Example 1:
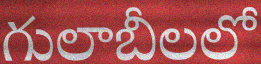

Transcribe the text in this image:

గులాబీలలో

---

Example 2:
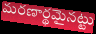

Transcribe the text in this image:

మరణార్థమైనట్టు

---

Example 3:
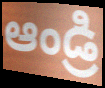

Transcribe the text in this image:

ఆండ్రి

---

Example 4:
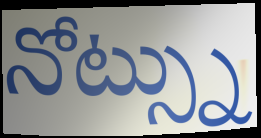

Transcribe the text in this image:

నోట్స్ను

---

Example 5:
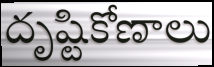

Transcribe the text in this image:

దృష్టికోణాలు